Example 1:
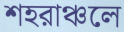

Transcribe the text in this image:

শহরাঞ্চলে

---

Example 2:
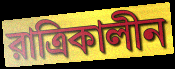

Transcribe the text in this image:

রাত্রিকালীন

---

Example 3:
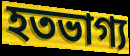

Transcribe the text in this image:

হতভাগ্য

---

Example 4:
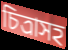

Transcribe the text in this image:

চিত্রাসহ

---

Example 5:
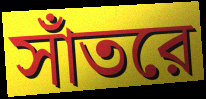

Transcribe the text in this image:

সাঁতরে